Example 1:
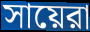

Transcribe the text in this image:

সায়েরা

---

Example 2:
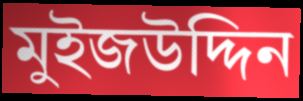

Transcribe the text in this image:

মুইজউদ্দিন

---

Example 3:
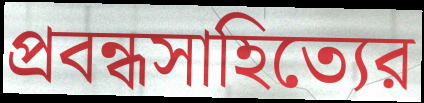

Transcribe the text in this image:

প্রবন্ধসাহিত্যের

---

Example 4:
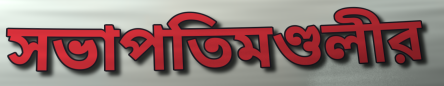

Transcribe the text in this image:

সভাপতিমণ্ডলীর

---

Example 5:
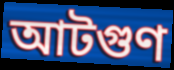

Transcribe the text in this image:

আটগুণ